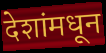
देशांमधून